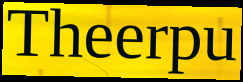
Theerpu